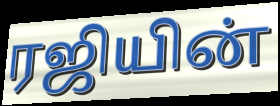
ரஜியின்